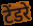
टेंडरे